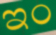
ఇం